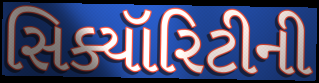
સિક્યૉરિટીની